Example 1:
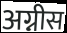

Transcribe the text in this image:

अग्नीस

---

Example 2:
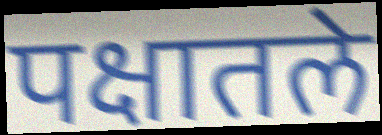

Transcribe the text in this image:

पक्षातले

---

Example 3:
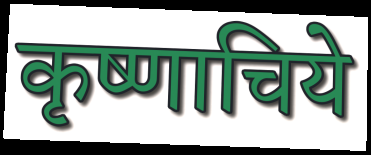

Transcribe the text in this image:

कृष्णाचिये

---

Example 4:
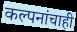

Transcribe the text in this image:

कल्पनांचाही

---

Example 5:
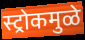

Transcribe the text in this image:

स्ट्रोकमुळे